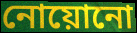
নোয়োনো